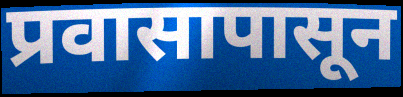
प्रवासापासून